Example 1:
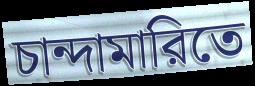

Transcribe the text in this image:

চান্দামারিতে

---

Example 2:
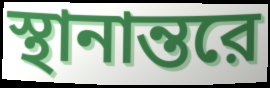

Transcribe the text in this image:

স্থানান্তরে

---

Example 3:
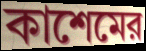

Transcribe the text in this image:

কাশেমের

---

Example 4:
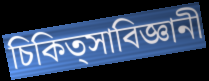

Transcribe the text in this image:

চিকিত্সাবিজ্ঞানী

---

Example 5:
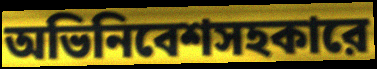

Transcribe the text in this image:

অভিনিবেশসহকারে